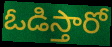
ఓడిస్తారో